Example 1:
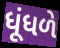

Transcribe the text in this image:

ધૂંધળે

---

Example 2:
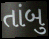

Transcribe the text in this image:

તાંબુ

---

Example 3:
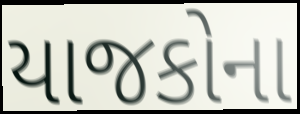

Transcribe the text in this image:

યાજકોના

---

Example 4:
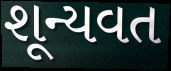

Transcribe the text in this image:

શૂન્યવત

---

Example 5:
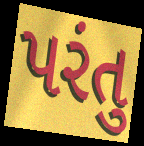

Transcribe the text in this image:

પરંતુ